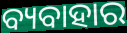
ବ୍ୟବାହାର